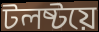
টলষ্টয়ে